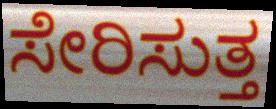
ಸೇರಿಸುತ್ತ